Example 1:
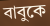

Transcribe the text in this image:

বাবুকে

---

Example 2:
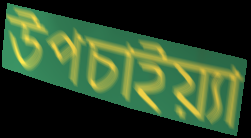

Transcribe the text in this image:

উপচাইয়্যা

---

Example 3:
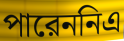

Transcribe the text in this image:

পারেননিএ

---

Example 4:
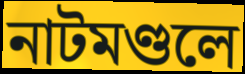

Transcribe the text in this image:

নাটমণ্ডলে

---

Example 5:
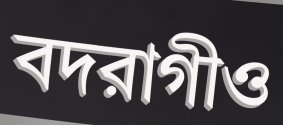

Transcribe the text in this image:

বদরাগীও